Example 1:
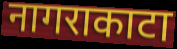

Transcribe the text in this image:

नागराकाटा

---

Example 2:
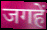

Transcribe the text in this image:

जगहें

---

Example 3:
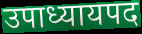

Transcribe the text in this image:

उपाध्यायपद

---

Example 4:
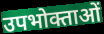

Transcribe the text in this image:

उपभोक्ताओं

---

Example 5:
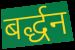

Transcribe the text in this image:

बर्द्धन